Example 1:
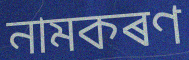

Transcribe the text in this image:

নামকৰণ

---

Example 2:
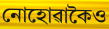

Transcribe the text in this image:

নোহোৱাকৈও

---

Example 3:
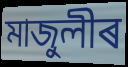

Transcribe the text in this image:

মাজুলীৰ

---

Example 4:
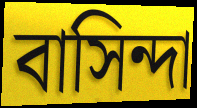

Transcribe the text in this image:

বাসিন্দা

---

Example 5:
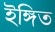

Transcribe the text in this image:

ইঙ্গিত